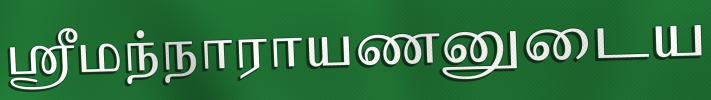
ஸ்ரீமந்நாராயணனுடைய